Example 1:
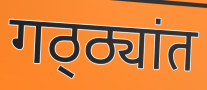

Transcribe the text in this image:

गठ्ठ्यांत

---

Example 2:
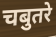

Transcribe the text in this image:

चबुतरे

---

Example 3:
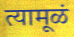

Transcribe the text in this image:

त्यामूळं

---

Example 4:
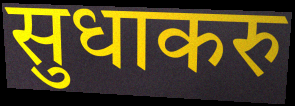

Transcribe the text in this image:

सुधाकरु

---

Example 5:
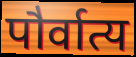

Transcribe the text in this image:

पौर्वात्य